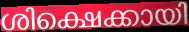
ശിക്ഷെക്കായി